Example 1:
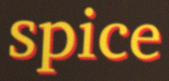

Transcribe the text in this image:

spice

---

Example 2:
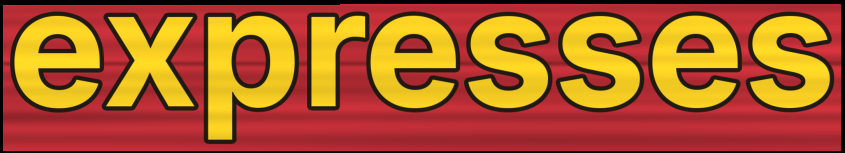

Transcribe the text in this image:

expresses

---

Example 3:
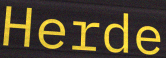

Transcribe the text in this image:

Herde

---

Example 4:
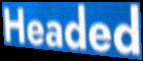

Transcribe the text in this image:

Headed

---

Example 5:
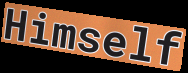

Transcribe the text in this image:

Himself